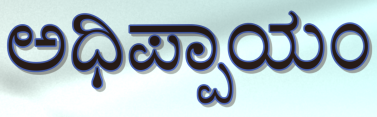
ಅಧಿಪ್ಪಾಯಂ